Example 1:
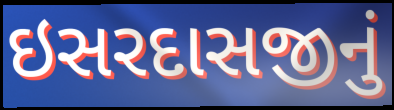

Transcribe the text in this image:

ઇસરદાસજીનું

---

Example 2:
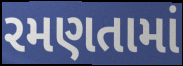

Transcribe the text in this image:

રમણતામાં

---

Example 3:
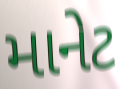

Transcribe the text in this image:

માનેટ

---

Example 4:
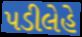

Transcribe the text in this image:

પડીલેહે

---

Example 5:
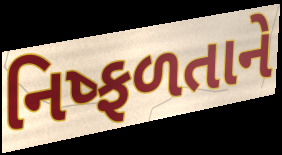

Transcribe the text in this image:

નિષ્ફળતાને